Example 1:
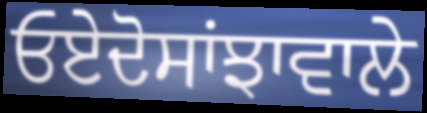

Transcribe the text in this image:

ਓਏਦੋਸਾਂਝਾਵਾਲੇ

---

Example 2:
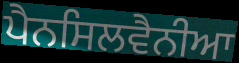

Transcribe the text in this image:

ਪੈਨਸਿਲਵੈਨੀਆ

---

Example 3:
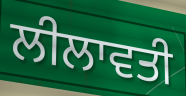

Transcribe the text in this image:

ਲੀਲਾਵਤੀ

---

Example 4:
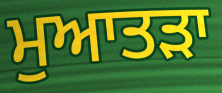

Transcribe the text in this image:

ਮੁਆਤੜਾ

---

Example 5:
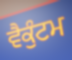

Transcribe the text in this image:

ਵੈਕੁੰਟਮ